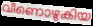
വീണൊഴുകിയ